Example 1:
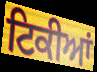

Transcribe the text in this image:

ਟਿਕੀਆਂ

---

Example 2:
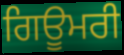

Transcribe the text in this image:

ਗਿਊਮਰੀ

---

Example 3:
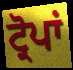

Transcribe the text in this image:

ਟ੍ਰੋਪਾਂ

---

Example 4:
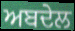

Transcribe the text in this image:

ਅਬਦੇਲ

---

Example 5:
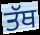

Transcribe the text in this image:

ਤੱਥ